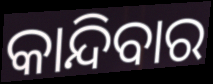
କାନ୍ଦିବାର